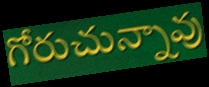
గోరుచున్నావు